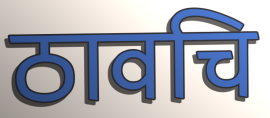
ठावचि